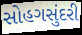
સોહગસુંદરી